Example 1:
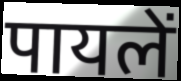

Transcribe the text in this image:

पायलें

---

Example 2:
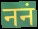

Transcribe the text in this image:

ननं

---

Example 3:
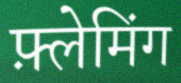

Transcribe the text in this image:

फ़्लेमिंग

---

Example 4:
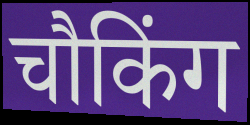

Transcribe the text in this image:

चौकिंग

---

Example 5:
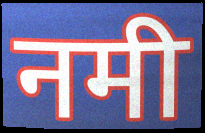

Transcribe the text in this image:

नमी